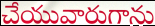
చేయువారుగాను